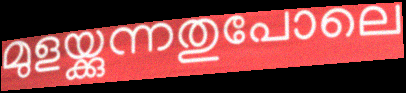
മുളയ്ക്കുന്നതുപോലെ